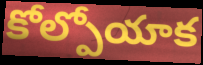
కోల్పోయాక